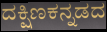
ದಕ್ಷಿಣಕನ್ನಡದ